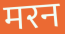
मरन